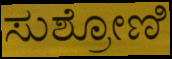
ಸುಶ್ರೋಣಿ